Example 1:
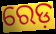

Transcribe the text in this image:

ରେଡ଼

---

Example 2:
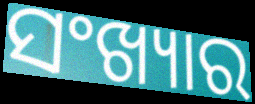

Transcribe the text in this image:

ସଂଖ୍ୟାର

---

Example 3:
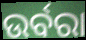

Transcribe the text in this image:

ଉର୍ବରା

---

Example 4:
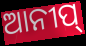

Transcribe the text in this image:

ଆନୀପ୍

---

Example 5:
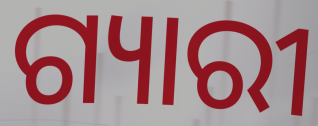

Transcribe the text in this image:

ଗ୍ୟାରୀ